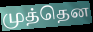
முத்தென